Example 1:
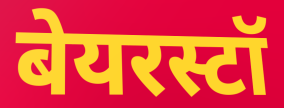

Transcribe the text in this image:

बेयरस्टॉ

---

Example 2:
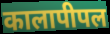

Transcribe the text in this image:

कालापीपल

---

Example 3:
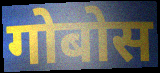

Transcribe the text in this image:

गोबोस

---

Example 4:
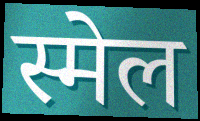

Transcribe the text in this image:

स्‍मेल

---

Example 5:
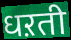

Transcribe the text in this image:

धऱती